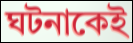
ঘটনাকেই